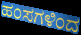
ಹಂಸಗಳಿಂದ